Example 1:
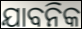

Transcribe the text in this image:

ଯାବନିକ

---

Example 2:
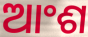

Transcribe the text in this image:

ଆଂଶ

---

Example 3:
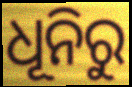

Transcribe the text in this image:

ଧୂନିରୁ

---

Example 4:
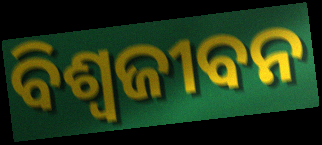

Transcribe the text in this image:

ବିଶ୍ଵଜୀବନ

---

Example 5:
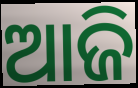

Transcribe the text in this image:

ଆଜି